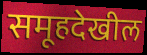
समूहदेखील